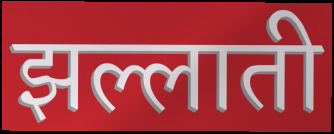
झल्लाती